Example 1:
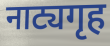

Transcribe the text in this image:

नाट्यगृह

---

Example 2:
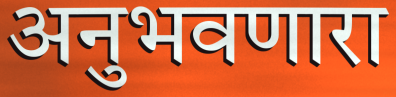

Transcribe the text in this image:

अनुभवणारा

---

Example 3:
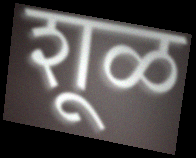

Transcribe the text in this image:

शूळ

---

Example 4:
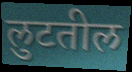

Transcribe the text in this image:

लुटतील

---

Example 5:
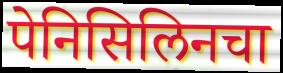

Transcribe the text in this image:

पेनिसिलिनचा